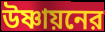
উষ্ণায়নের